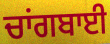
ਚਾਂਗਬਾਈ